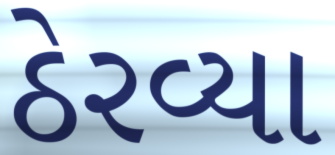
ઠેરવ્યા